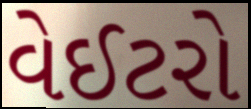
વેઈટરો